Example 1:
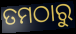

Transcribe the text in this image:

ତମଠାରୁ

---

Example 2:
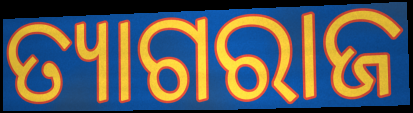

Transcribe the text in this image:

ତ୍ୟାଗରାଜ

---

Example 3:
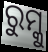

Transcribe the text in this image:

ରୁମ୍କୁ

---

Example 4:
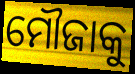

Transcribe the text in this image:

ମୌଜାକୁ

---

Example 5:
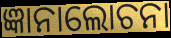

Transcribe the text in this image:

ଜ୍ଞାନାଲୋଚନା